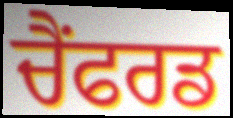
ਚੈਂਫਰਡ